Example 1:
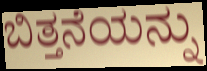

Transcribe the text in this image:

ಬಿತ್ತನೆಯನ್ನು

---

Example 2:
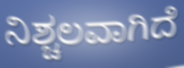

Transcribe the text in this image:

ನಿಶ್ಚಲವಾಗಿದೆ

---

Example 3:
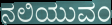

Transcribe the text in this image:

ನಲಿಯುವಂ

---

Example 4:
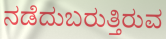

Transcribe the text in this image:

ನಡೆದುಬರುತ್ತಿರುವ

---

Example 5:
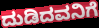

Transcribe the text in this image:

ದುಡಿದವನಿಗೆ